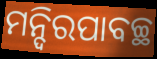
ମନ୍ଦିରପାବଚ୍ଛ